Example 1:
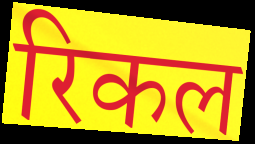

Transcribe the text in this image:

रिकल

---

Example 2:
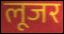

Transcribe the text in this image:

लूजर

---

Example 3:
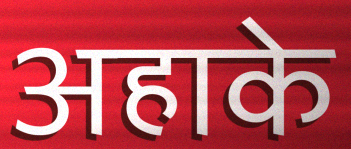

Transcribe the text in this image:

अहाके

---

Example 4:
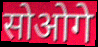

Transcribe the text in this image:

सोओगे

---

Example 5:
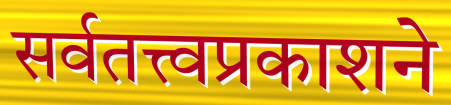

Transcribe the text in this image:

सर्वतत्त्वप्रकाशने